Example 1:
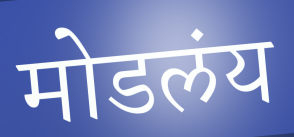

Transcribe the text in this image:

मोडलंय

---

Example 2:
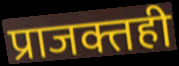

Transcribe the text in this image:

प्राजक्तही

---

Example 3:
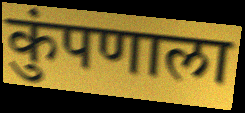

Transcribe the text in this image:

कुंपणाला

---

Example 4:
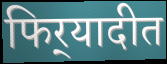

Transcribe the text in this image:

फिर्यादीत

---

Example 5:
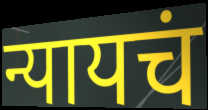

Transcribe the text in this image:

न्यायचं